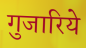
गुजारिये